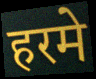
हरमे